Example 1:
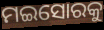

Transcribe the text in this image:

ମଇସୋରକୁ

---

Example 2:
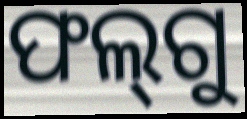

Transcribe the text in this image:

ଫଲ୍‌ଗୁ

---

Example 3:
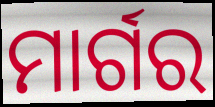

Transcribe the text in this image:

ମାର୍ଗର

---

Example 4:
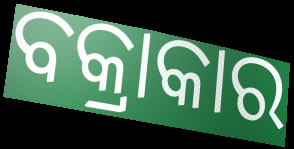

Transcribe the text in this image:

ବକ୍ରାକାର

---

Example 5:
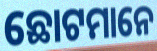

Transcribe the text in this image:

ଛୋଟମାନେ